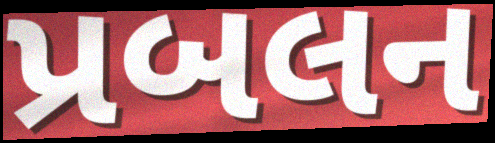
પ્રબલન